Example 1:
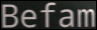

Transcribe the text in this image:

Befam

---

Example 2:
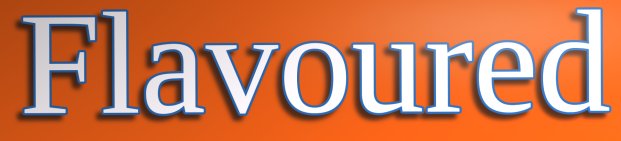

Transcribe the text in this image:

Flavoured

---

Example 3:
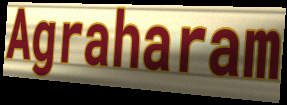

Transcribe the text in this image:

Agraharam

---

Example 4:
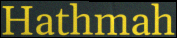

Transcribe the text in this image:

Hathmah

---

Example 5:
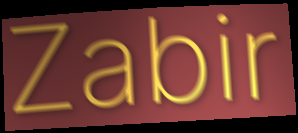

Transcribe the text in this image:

Zabir